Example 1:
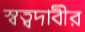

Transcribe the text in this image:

স্বত্বদাবীর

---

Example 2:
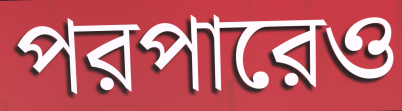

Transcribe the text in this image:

পরপারেও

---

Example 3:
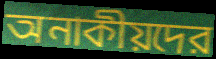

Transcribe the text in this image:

অনাকীয়দের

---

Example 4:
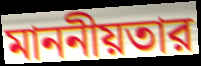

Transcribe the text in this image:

মাননীয়তার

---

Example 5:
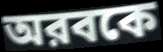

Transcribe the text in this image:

অরবকে